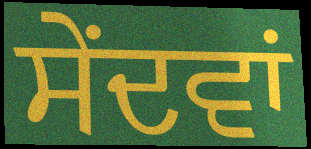
ਸੇਂਦਵਾਂ